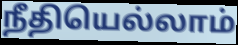
நீதியெல்லாம்